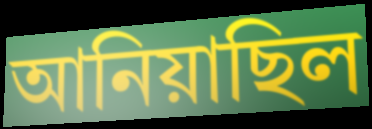
আনিয়াছিল